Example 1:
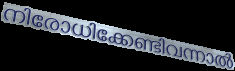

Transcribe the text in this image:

നിരോധിക്കേണ്ടിവന്നാൽ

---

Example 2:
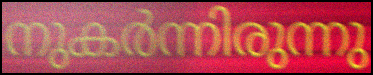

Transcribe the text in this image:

നുകർന്നിരുന്നു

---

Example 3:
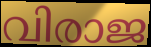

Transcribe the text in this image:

വിരാജ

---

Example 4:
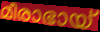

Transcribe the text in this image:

മീരാഭായ്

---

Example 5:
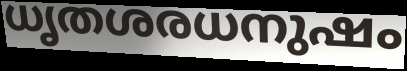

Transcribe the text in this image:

ധൃതശരധനുഷം